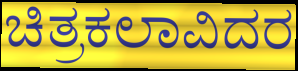
ಚಿತ್ರಕಲಾವಿದರ